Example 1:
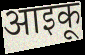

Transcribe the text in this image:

आइकू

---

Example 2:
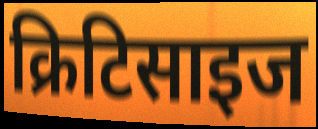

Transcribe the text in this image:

क्रिटिसाइज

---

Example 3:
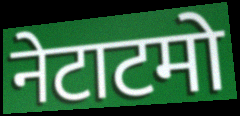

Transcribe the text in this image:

नेटाटमो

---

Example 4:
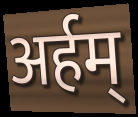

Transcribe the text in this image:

अर्हम्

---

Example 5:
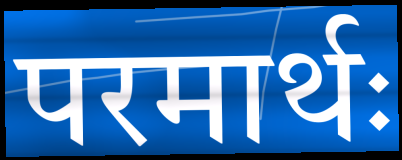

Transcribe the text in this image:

परमार्थः